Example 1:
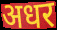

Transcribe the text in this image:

अधर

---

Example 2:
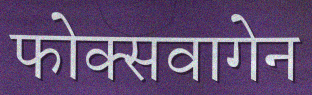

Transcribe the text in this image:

फोक्सवागेन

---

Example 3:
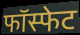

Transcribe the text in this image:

फॉस्फेट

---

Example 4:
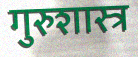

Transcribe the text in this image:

गुरुशास्त्र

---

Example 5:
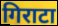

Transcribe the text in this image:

गिराटा